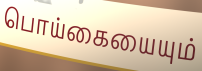
பொய்கையையும்